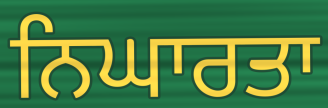
ਨਿਘਾਰਤਾ